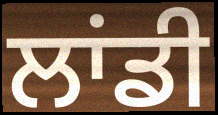
ਲਾਂਡੀ